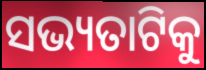
ସଭ୍ୟତାଟିକୁ